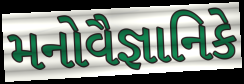
મનોવૈજ્ઞાનિકે